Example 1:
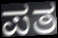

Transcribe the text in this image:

ಪತ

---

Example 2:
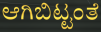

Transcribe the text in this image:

ಆಗಿಬಿಟ್ಟಂತೆ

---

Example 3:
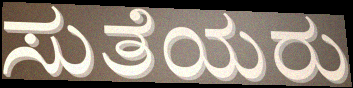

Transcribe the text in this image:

ಸುತೆಯರು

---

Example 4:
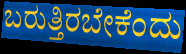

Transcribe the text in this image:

ಬರುತ್ತಿರಬೇಕೆಂದು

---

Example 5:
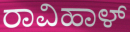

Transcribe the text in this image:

ರಾವಿಹಾಳ್